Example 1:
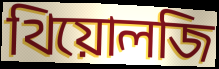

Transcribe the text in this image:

থিয়োলজি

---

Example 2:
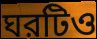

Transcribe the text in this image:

ঘরটিও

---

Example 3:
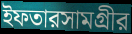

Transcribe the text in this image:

ইফতারসামগ্রীর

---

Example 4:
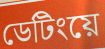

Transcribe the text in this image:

ডেটিংয়ে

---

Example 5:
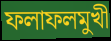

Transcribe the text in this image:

ফলাফলমুখী